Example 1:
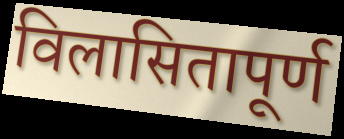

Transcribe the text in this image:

विलासितापूर्ण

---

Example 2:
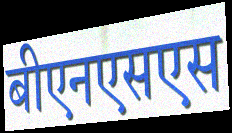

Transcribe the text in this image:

बीएनएसएस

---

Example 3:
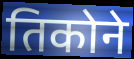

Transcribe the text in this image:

तिकोने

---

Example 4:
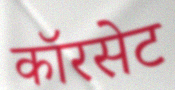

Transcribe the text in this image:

कॉरसेट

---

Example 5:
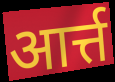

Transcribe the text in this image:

आर्त्त